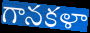
గానకళా